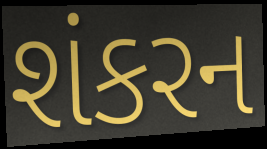
શંકરન